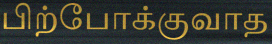
பிற்போக்குவாத